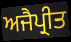
ਅਜੈਪ੍ਰੀਤ